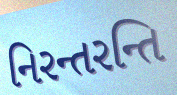
નિરન્તરન્તિ